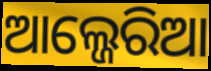
ଆଲ୍ଜେରିଆ